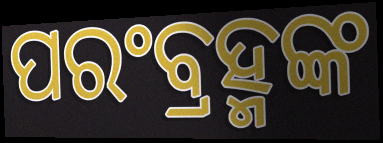
ପରଂବ୍ରହ୍ମଙ୍କ